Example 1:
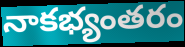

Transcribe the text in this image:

నాకభ్యంతరం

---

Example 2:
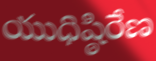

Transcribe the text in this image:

యుధిష్ఠిరేణ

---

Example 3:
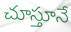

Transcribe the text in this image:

చూస్తూనే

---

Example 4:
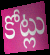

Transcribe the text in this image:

కోట్లు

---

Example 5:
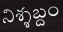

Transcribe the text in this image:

నిశ్శబ్దం